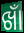
ଖାଁ